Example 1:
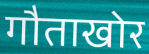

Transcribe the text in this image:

गौताखोर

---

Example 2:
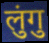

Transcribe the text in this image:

लुंगु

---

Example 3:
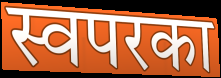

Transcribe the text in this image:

स्वपरका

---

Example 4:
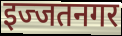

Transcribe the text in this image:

इज्जतनगर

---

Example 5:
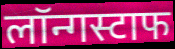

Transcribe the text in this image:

लॉन्गस्टाफ